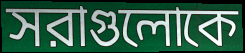
সরাগুলোকে